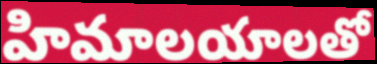
హిమాలయాలతో